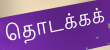
தொடக்கக்